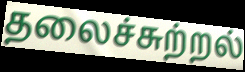
தலைச்சுற்றல்